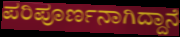
ಪರಿಪೂರ್ಣನಾಗಿದ್ದಾನೆ